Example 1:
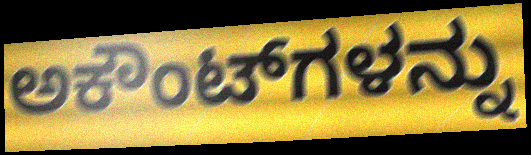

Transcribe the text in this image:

ಅಕೌಂಟ್‌ಗಳನ್ನು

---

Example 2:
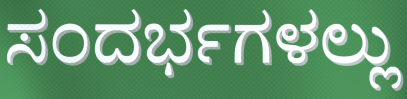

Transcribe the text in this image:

ಸಂದರ್ಭಗಳಲ್ಲು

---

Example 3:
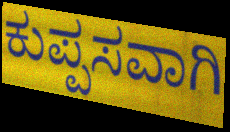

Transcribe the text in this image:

ಕುಪ್ಪಸವಾಗಿ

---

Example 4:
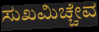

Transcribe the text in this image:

ಸುಖಮಿಚ್ಚೇವ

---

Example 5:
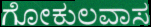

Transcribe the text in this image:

ಗೋಕುಲವಾಸ